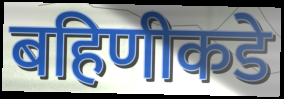
बहिणीकडे